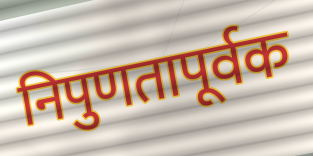
निपुणतापूर्वक